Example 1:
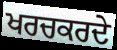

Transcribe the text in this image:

ਖਰਚਕਰਦੇ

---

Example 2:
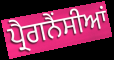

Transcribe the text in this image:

ਪ੍ਰੈਗਨੈਂਸੀਆਂ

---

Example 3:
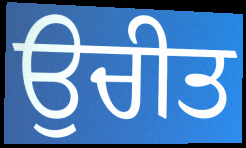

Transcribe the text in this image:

ਉਚੀਤ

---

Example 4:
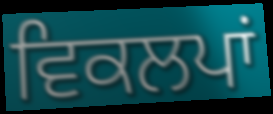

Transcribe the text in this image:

ਵਿਕਲਪਾਂ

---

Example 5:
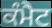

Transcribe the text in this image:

ਕੰਮੈਟ